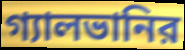
গ্যালভানির